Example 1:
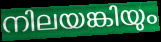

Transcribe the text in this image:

നിലയങ്കിയും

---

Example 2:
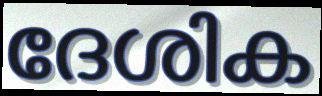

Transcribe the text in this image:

ദേശിക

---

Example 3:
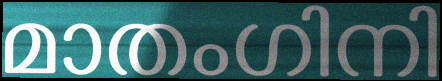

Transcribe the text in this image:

മാതംഗിനി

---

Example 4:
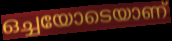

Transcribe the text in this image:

ഒച്ചയോടെയാണ്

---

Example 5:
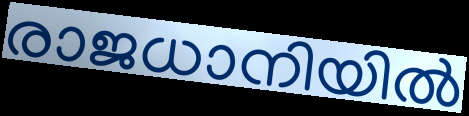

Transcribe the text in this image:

രാജധാനിയിൽ